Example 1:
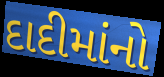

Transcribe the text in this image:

દાદીમાંનો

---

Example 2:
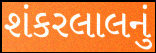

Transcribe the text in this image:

શંકરલાલનું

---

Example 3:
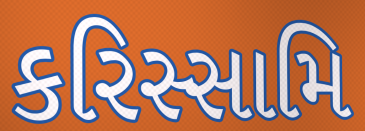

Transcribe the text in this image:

કરિસ્સામિ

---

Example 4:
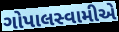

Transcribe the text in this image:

ગોપાલસ્વામીએ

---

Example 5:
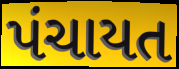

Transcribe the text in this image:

પંચાયત